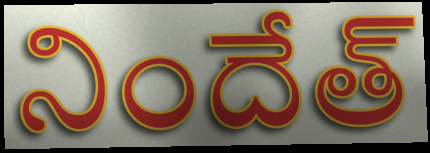
నిందేత్